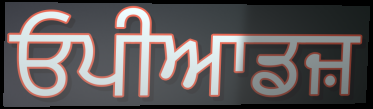
ਓਪੀਆਡਜ਼